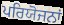
ਪਰਿਯੋਜਨਾਂ